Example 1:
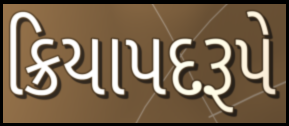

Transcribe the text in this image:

ક્રિયાપદરૂપે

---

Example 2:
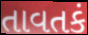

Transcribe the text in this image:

તાવતકં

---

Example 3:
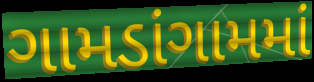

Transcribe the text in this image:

ગામડાંગામમાં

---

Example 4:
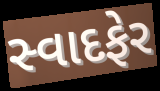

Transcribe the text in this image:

સ્વાદફેર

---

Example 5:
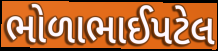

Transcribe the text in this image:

ભોળાભાઈપટેલ